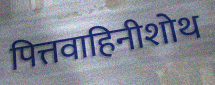
पित्तवाहिनीशोथ